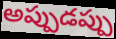
అప్పుడప్పు